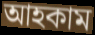
আহকাম